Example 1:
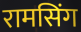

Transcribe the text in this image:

रामसिंग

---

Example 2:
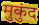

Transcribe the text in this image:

मुकुंद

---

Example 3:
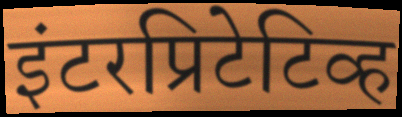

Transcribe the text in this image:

इंटरप्रिटेटिव्ह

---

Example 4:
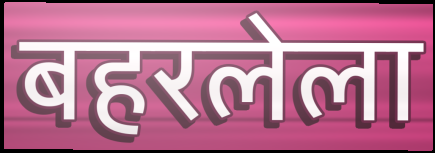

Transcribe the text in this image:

बहरलेला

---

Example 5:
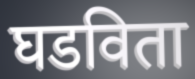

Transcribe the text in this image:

घडविता